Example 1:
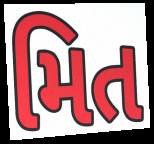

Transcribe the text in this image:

મિત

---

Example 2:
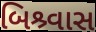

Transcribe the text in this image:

બિશ્ર્વાસ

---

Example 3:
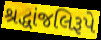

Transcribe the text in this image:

શ્રદ્ધાંજલિરૂપે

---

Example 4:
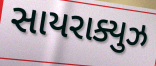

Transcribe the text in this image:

સાયરાક્યુઝ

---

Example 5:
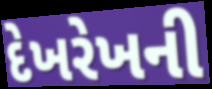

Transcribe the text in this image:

દેખરેખની